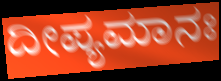
ದೀಪ್ಯಮಾನಃ